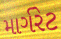
માર્ગરેટ